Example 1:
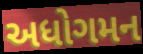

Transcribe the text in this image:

અધોગમન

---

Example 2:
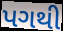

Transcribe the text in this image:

પગથી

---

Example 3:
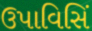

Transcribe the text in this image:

ઉપાવિસિં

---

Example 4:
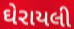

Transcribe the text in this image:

ઘેરાયલી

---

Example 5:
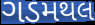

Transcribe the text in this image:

ગડમથલ